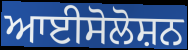
ਆਈਸੋਲੋਸ਼ਨ